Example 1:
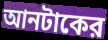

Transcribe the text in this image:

আনটাকের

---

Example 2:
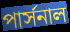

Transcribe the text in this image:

পার্সনাল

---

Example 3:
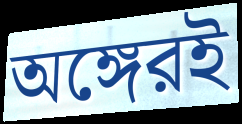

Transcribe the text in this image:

অঙ্গেরই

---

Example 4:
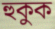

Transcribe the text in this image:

হুকুক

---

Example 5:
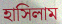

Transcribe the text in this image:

হাসিলাম